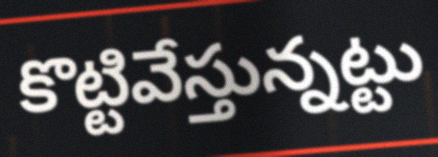
కొట్టివేస్తున్నట్టు